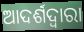
ଆଦର୍ଶଦ୍ୱାରା